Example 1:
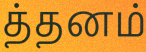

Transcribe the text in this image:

த்தனம்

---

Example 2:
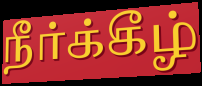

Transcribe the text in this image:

நீர்க்கீழ்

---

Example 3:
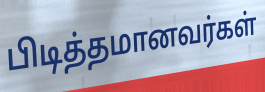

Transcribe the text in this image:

பிடித்தமானவர்கள்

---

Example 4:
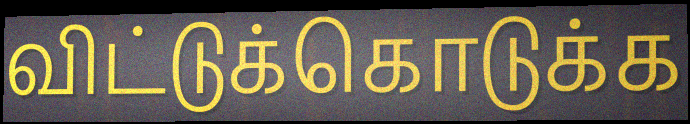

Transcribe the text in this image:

விட்டுக்கொடுக்க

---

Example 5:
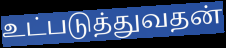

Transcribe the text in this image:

உட்படுத்துவதன்